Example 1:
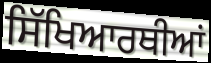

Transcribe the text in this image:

ਸਿੱਖਿਆਰਥੀਆਂ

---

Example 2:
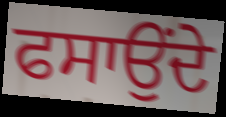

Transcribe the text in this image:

ਫਸਾਉਂਦੇ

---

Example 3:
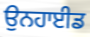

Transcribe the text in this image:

ਉਨਹਾਈਡ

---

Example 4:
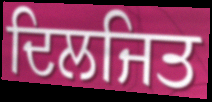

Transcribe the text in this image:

ਦਿਲਜਿਤ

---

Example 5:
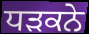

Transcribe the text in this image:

ਧਡ਼ਕਨੇ